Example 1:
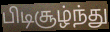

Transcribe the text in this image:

பிடிசூழ்ந்து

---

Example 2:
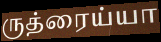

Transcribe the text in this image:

ருத்ரைய்யா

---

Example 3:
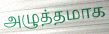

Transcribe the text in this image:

அழுத்தமாக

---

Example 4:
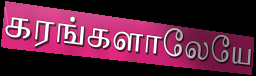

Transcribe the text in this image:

கரங்களாலேயே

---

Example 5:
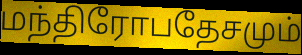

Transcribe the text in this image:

மந்திரோபதேசமும்